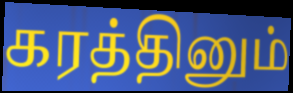
கரத்தினும்